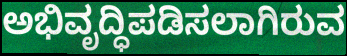
ಅಭಿವೃದ್ಧಿಪಡಿಸಲಾಗಿರುವ